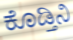
ಕೊಡ್ತಿನಿ